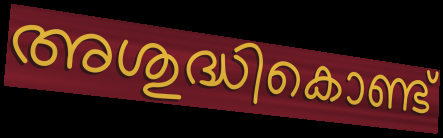
അശുദ്ധികൊണ്ട്